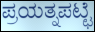
ಪ್ರಯತ್ನಪಟ್ಟೆ